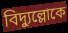
বিদ্যুল্লোকে